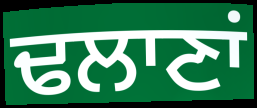
ਢਲਾਣਾਂ